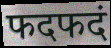
फदफदं